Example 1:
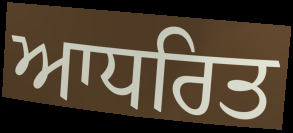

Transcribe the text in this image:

ਆਧਰਿਤ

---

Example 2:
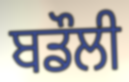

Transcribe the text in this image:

ਬਡੌਲੀ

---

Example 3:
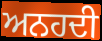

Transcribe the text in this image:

ਅਨਹਦੀ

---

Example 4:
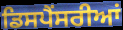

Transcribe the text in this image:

ਡਿਸਪੈਂਸਰੀਆਂ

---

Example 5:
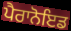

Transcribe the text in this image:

ਪੈਰਾਨੋਇਡ